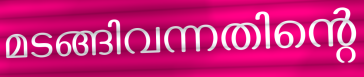
മടങ്ങിവന്നതിന്റെ